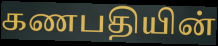
கணபதியின்